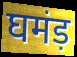
घमंड़